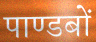
पाण्डबों